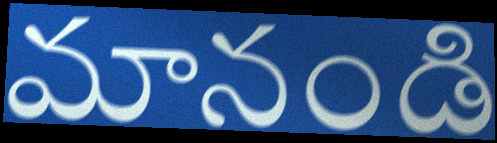
మానండి